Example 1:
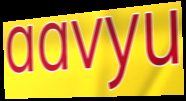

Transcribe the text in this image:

aavyu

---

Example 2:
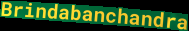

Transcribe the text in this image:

Brindabanchandra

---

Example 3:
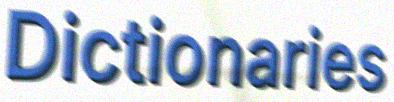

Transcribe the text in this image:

Dictionaries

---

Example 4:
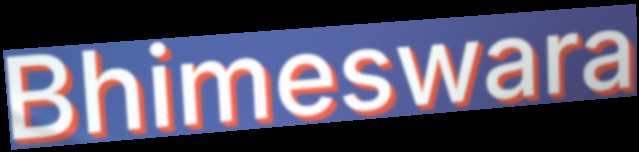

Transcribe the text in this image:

Bhimeswara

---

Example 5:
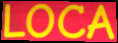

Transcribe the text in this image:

LOCA